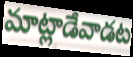
మాట్లాడేవాడట